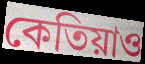
কেতিয়াও